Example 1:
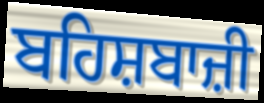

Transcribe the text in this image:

ਬਹਿਸ਼ਬਾਜ਼ੀ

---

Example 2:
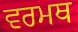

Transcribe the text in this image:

ਵਰਮਥ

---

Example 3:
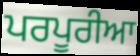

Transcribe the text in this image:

ਪਰਪੂਰੀਆ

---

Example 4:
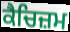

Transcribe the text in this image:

ਕੈਚਿਜ਼ਮ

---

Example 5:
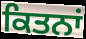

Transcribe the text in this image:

ਕਿਤਨਾਂ